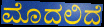
ಮೊದಲಿದೆ